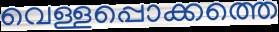
വെള്ളപ്പൊക്കത്തെ